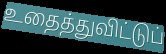
உதைத்துவிட்டுப்